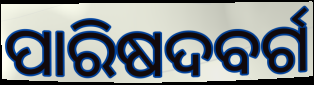
ପାରିଷଦବର୍ଗ